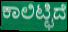
ಕಾಲಿಟ್ಟಿದೆ